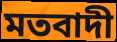
মতবাদী